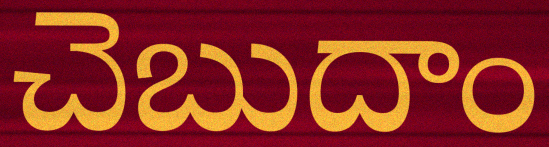
చెబుదాం